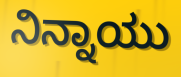
ನಿನ್ನಾಯು